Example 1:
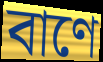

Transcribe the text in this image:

বাণে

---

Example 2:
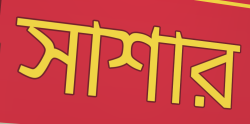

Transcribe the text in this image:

সাশার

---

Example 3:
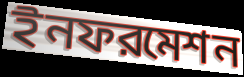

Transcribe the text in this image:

ইনফরমেশন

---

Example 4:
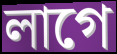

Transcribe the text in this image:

লাগে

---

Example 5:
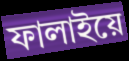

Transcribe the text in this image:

ফালাইয়ে